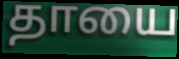
தாயை